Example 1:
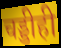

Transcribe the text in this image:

चड्डीही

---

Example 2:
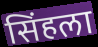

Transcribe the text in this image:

सिंहला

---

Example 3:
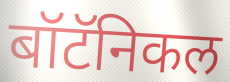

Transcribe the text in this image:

बॉटॅनिकल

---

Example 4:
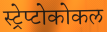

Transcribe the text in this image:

स्ट्रेप्टोकोकल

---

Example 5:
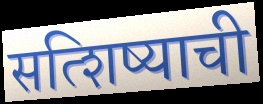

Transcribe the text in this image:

सत्शिष्याची